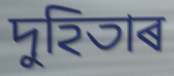
দুহিতাৰ